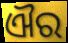
ଐର